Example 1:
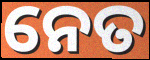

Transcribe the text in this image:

ନେତ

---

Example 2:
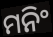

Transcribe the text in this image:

ମନିଂ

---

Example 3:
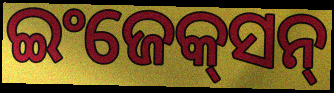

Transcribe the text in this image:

ଇଂଜେକ୍‌ସନ୍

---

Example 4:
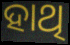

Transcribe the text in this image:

ହାଥି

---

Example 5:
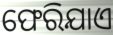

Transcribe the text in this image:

ଫେରିଯାଏ